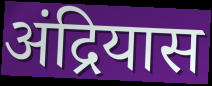
अंद्रियास